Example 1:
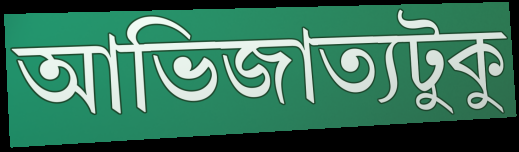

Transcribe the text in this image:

আভিজাত্যটুকু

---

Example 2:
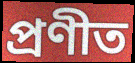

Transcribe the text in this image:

প্রণীত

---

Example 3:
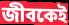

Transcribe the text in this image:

জীবকেই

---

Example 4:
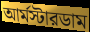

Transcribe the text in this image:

আর্মস্টারডাম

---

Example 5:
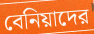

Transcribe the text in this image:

বেনিয়াদের